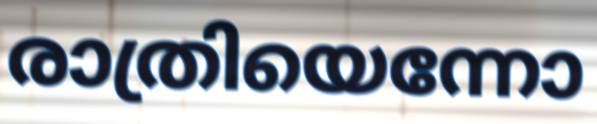
രാത്രിയെന്നോ